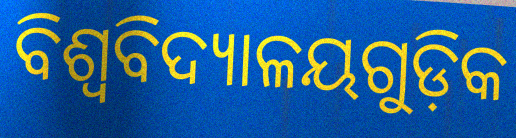
ବିଶ୍ଵବିଦ୍ୟାଳୟଗୁଡ଼ିକ